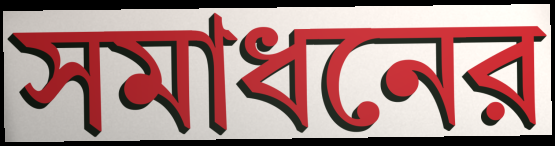
সমাধনের